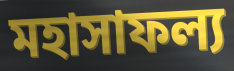
মহাসাফল্য